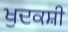
ਖੁਦਕਸ਼ੀ